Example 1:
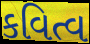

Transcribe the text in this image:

કવિત્વ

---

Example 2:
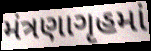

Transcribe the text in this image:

મંત્રણાગૃહમાં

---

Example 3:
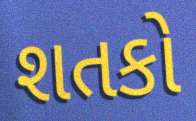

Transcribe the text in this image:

શતકો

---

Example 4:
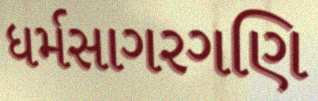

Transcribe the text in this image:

ધર્મસાગરગણિ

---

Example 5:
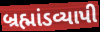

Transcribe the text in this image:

બ્રહ્માંડવ્યાપી